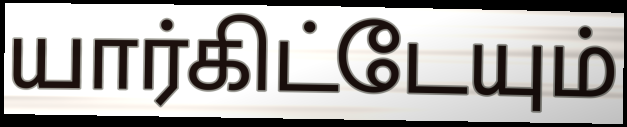
யார்கிட்டேயும்